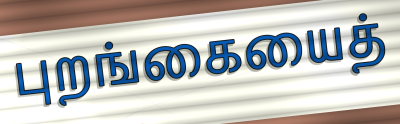
புறங்கையைத்